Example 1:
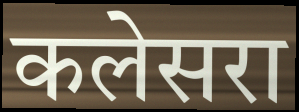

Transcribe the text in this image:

कलेसरा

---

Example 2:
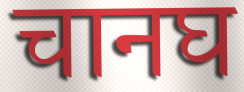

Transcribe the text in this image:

चानघ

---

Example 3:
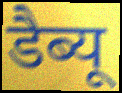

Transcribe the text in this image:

डैब्यू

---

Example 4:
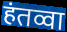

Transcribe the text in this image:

हंतव्वा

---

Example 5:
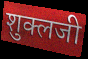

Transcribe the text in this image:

शुक्‍लजी